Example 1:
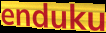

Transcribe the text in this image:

enduku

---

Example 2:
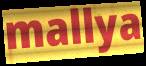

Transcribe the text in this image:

mallya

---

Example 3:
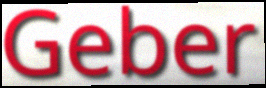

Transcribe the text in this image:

Geber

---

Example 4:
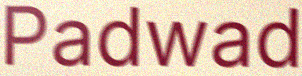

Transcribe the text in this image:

Padwad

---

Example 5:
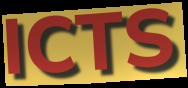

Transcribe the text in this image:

ICTS